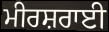
ਮੀਰਸ਼ਰਾਈ